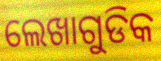
ଲେଖାଗୁଡିକ